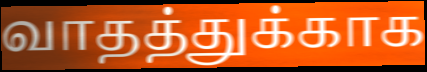
வாதத்துக்காக